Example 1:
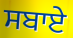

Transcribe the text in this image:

ਸਬਾਏ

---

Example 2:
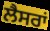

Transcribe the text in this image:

ਲੈਸਰਾਂ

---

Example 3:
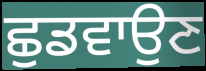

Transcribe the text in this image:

ਛੁਡਵਾਉਣ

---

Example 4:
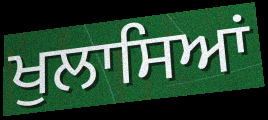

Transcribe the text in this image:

ਖੁਲਾਸਿਆਂ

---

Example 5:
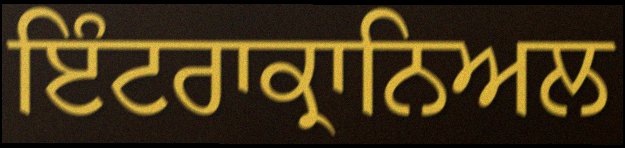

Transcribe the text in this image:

ਇੰਟਰਾਕ੍ਰਾਨਿਅਲ